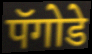
पॅगोडे